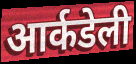
आर्कडेली